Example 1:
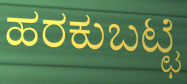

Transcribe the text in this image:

ಹರಕುಬಟ್ಟೆ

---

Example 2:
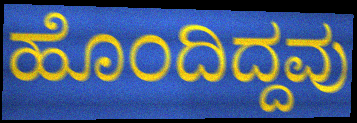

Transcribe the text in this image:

ಹೊಂದಿದ್ದವು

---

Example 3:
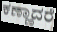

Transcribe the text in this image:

ಕಣ್ಣಾದರೆ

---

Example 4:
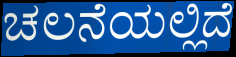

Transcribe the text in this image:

ಚಲನೆಯಲ್ಲಿದೆ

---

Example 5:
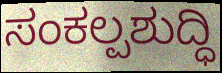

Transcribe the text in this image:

ಸಂಕಲ್ಪಶುದ್ಧಿ